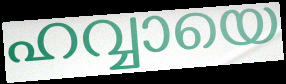
ഹവ്വായെ